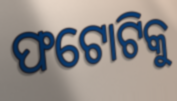
ଫଟୋଟିକୁ